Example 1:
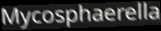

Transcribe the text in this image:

Mycosphaerella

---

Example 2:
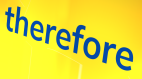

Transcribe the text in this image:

therefore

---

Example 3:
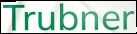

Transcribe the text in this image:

Trubner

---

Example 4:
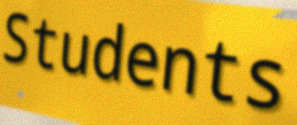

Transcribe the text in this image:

Students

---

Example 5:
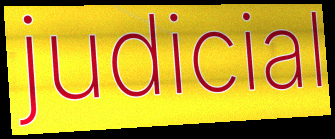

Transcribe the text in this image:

judicial